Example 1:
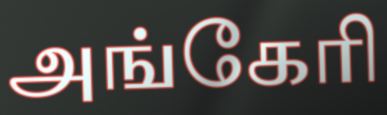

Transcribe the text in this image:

அங்கேரி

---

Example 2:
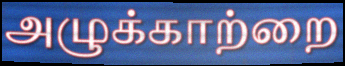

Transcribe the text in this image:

அழுக்காற்றை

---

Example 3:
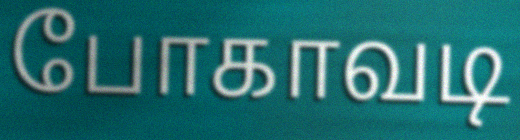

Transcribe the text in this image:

போகாவடி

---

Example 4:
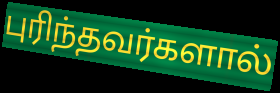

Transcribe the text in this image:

புரிந்தவர்களால்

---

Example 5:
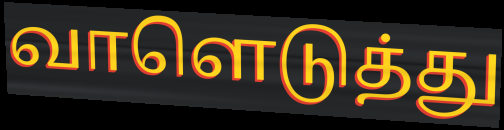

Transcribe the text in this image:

வாளெடுத்து